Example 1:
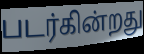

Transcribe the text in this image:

படர்கின்றது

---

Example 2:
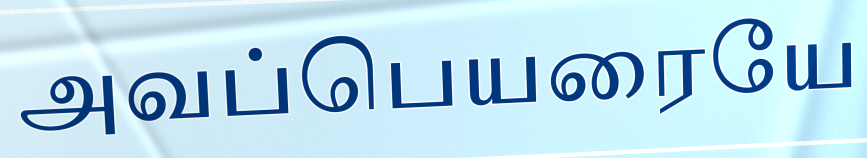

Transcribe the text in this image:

அவப்பெயரையே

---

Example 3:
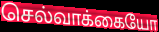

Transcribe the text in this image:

செல்வாக்கையோ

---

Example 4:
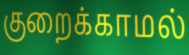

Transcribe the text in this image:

குறைக்காமல்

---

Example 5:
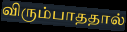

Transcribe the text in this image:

விரும்பாததால்